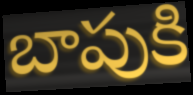
బాపుకి